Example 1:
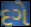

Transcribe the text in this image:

દગે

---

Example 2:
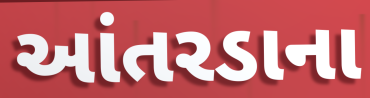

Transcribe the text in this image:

આંતરડાના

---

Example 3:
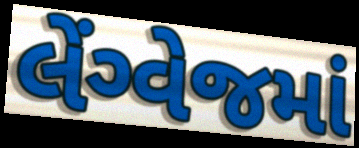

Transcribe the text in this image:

લેંગ્વેજમાં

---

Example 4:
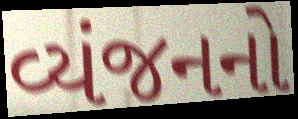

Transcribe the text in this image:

વ્યંજનનો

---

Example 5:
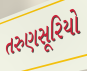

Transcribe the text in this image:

તરુણસૂરિયો